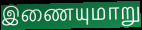
இணையுமாறு